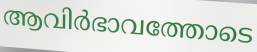
ആവിർഭാവത്തോടെ